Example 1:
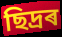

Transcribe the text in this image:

ছিদ্ৰৰ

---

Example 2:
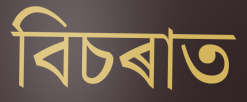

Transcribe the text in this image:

বিচৰাত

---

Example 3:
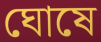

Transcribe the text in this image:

ঘোষে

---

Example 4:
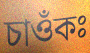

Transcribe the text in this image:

চাওঁকঃ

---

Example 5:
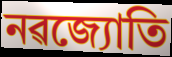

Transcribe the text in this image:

নৱজ্যোতি